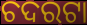
ଚଦରଟା